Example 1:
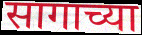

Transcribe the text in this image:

सागाच्या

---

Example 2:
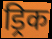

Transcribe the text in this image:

ड्रिक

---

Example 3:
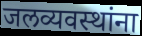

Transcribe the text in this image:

जलव्यवस्थांना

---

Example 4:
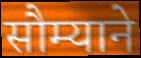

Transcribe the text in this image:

सौम्याने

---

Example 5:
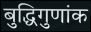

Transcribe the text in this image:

बुद्धिगुणांक